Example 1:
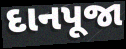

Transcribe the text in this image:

દાનપૂજા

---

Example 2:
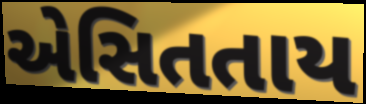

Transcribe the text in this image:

એસિતતાય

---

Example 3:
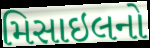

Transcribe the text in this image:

મિસાઇલનો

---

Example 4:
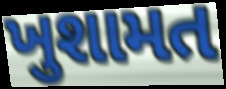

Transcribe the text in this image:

ખુશામત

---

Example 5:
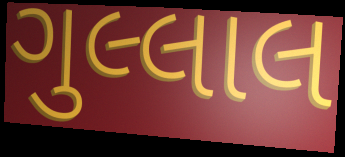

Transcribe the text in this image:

ગુલ્લાલ